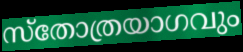
സ്തോത്രയാഗവും